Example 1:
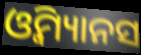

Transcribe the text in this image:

ଓ୍ବିମ୍ୟାନସ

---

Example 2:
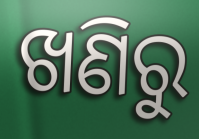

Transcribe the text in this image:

ଖଣିରୁ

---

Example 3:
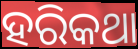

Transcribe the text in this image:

ହରିକଥା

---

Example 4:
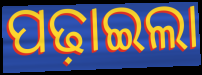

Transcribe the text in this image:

ପଢ଼ାଇଲା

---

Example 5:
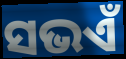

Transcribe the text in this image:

ସଭଏଁ